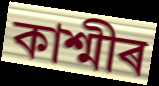
কাশ্মীৰ